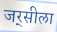
जर्सीला